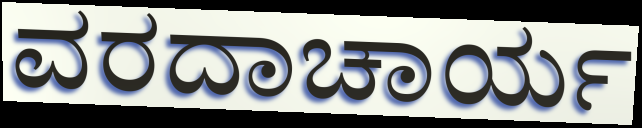
ವರದಾಚಾರ್ಯ